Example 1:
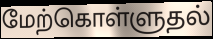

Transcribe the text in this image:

மேற்கொள்ளுதல்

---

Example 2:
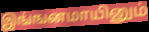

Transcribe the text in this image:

இங்ஙனமாயினும்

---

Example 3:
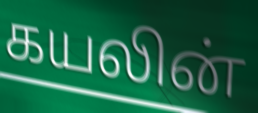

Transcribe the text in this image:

கயலின்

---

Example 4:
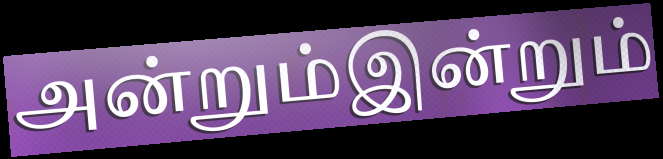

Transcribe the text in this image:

அன்றும்இன்றும்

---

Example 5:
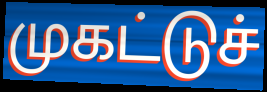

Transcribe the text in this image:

முகட்டுச்